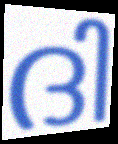
ദി